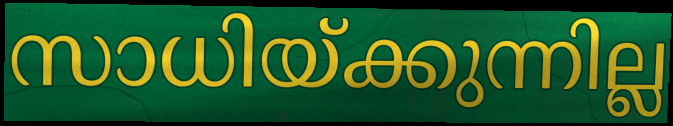
സാധിയ്ക്കുന്നില്ല